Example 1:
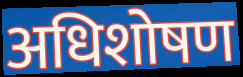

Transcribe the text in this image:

अधिशोषण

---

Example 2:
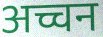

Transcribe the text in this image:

अच्चन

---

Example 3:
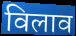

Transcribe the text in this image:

विलाव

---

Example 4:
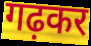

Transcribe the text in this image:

गढ़कर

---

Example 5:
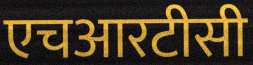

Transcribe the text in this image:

एचआरटीसी